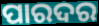
ପାରଦର